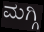
ಮಗ್ಗಿ